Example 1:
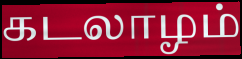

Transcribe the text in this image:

கடலாழம்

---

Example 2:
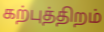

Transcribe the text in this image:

கற்புத்திறம்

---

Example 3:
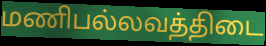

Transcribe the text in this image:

மணிபல்லவத்திடை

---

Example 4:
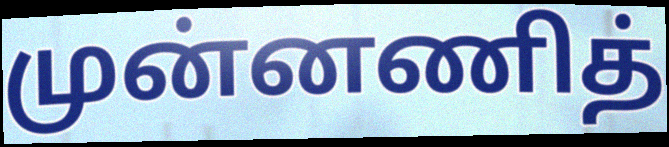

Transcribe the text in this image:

முன்னணித்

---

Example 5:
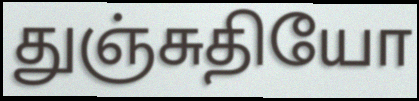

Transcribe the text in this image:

துஞ்சுதியோ